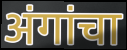
अंगांचा